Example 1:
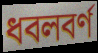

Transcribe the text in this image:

ধবলবর্ণ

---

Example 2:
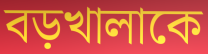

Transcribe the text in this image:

বড়খালাকে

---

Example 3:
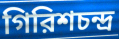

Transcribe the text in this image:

গিরিশচন্দ্র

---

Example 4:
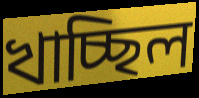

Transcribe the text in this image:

খাচ্ছিল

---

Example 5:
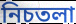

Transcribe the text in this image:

নিচতলা